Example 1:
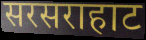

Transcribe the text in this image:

सरसराहाट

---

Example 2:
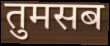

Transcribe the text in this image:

तुमसब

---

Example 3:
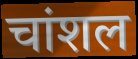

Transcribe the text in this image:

चांशल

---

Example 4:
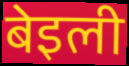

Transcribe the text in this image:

बेइली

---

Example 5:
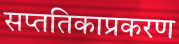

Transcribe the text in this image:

सप्ततिकाप्रकरण